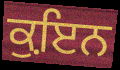
ਕ਼ੁਇਨ